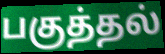
பகுத்தல்